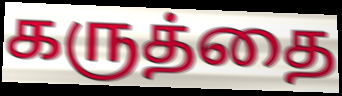
கருத்தை